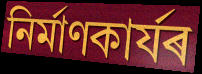
নিৰ্মাণকাৰ্যৰ